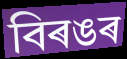
বিৰঙৰ